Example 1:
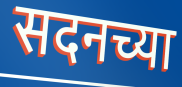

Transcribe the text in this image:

सदनच्या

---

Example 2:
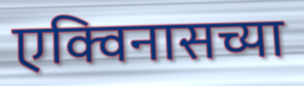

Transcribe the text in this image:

एक्विनासच्या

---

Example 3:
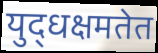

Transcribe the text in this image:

युद्धक्षमतेत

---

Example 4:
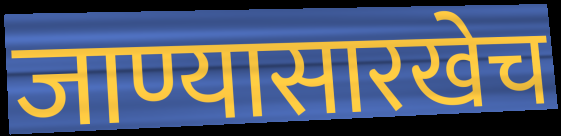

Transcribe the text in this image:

जाण्यासारखेच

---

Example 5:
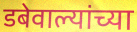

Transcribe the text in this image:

डबेवाल्यांच्या